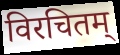
विरचितम्